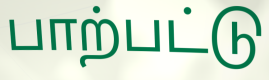
பாற்பட்டு